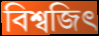
বিশ্বজিৎ